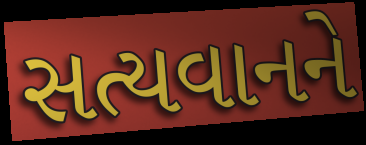
સત્યવાનને